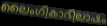
ലൈംഗികാഭിലാഷം